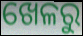
ଖେଳରୁ